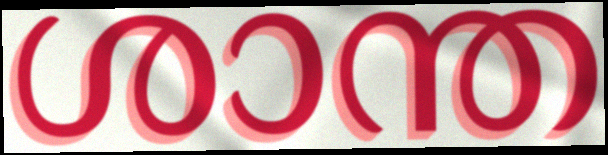
ശാന്ത